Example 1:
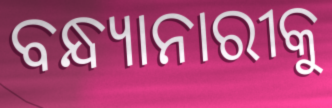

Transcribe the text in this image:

ବନ୍ଧ୍ୟାନାରୀକୁ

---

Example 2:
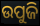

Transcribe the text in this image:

ଉପୁଜି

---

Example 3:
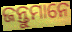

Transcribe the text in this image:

ଜନ୍ତୁମାନେ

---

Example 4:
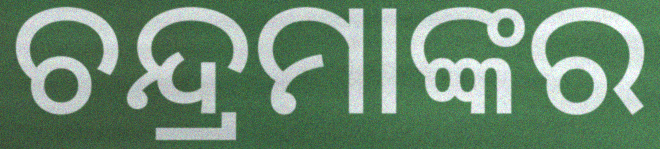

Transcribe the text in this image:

ଚନ୍ଦ୍ରମାଙ୍କର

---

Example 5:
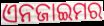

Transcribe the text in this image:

ଏନଜାଇମର